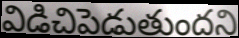
విడిచిపెడుతుందని